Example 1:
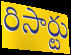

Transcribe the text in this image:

రిసార్టు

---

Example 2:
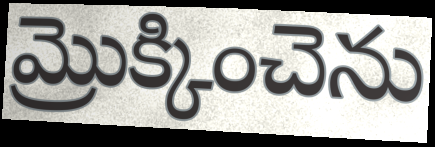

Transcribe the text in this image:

మ్రొక్కించెను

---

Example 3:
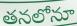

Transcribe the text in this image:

తనలోనూ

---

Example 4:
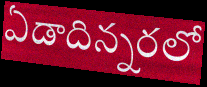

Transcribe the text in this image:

ఏడాదిన్నరలో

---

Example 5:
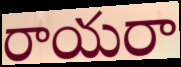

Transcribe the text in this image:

రాయరా